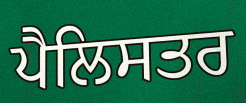
ਪੈਲਿਸਤਰ